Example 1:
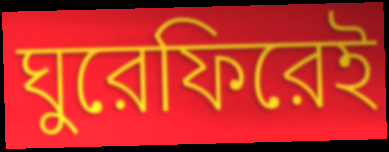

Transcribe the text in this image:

ঘুরেফিরেই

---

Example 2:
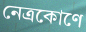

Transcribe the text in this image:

নেত্রকোণে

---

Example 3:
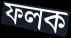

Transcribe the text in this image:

ফলক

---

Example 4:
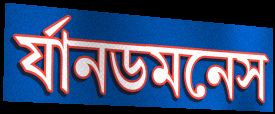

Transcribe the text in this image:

র্যানডমনেস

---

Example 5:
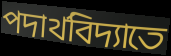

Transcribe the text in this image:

পদার্থবিদ্যাতে